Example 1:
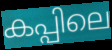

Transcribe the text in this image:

കപ്പിലെ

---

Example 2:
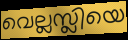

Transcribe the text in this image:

വെല്ലസ്ലിയെ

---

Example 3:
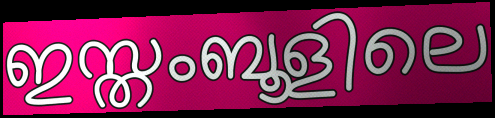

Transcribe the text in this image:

ഇസ്തംബൂളിലെ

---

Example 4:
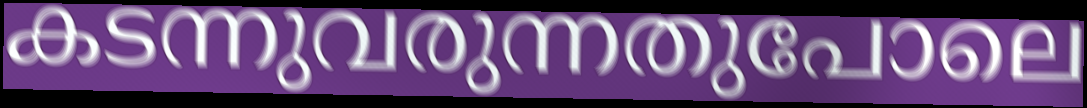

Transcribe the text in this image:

കടന്നുവരുന്നതുപോലെ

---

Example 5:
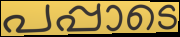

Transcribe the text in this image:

പപ്പാടെ